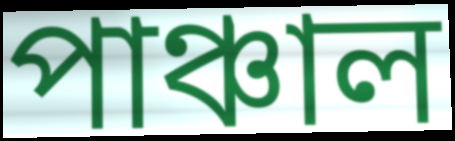
পাঞ্চাল